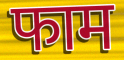
फाम